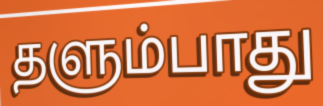
தளும்பாது